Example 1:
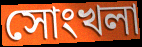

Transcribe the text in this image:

সোংখলা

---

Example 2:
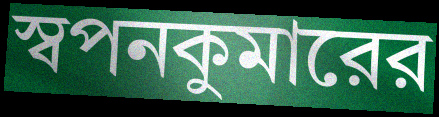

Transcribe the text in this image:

স্বপনকুমারের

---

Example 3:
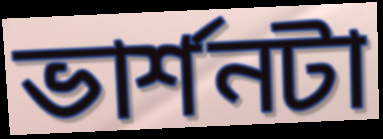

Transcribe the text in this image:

ভার্শনটা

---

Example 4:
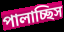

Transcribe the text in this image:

পালাচ্ছিস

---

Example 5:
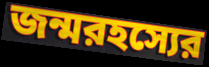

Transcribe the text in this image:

জন্মরহস্যের